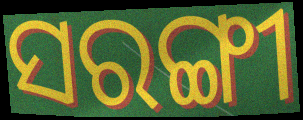
ସରଙ୍ଗୀ